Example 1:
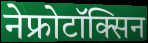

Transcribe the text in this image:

नेफ्रोटॉक्सिन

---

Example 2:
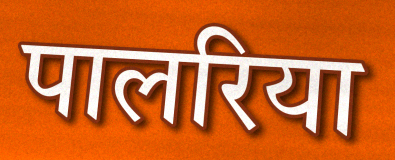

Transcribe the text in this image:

पालरिया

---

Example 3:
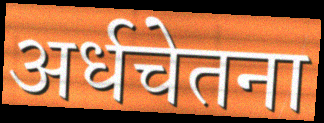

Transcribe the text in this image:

अर्धचेतना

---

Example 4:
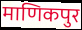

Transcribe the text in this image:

माणिकपुर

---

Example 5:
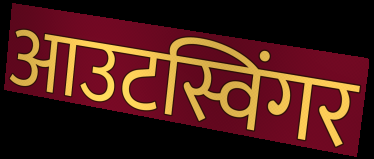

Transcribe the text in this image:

आउटस्विंगर